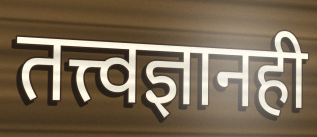
तत्त्वज्ञानही